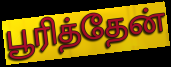
பூரித்தேன்